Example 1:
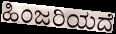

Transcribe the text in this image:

ಹಿಂಜರಿಯದೆ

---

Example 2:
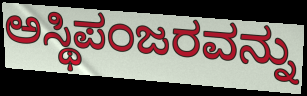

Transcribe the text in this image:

ಅಸ್ಥಿಪಂಜರವನ್ನು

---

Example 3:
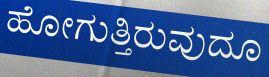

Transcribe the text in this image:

ಹೋಗುತ್ತಿರುವುದೂ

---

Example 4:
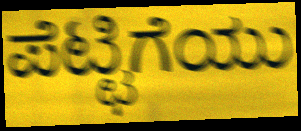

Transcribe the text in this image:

ಪೆಟ್ಟಿಗೆಯು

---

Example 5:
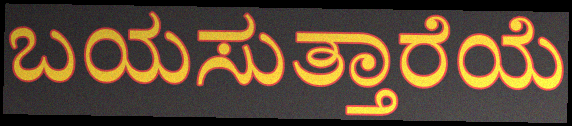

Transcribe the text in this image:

ಬಯಸುತ್ತಾರೆಯೆ